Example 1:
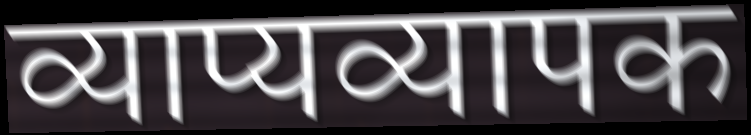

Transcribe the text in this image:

व्याप्यव्यापक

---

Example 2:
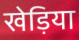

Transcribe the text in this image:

खेड़िया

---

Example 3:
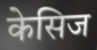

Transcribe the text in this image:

केसिज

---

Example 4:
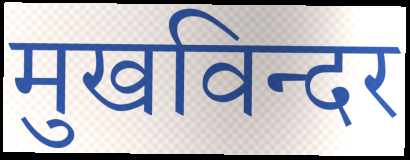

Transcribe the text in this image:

मुखविन्दर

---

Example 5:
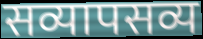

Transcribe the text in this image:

सव्यापसव्य